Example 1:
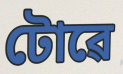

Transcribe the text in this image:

টোৱে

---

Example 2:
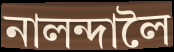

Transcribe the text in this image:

নালন্দালৈ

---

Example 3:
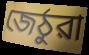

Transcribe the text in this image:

জেঠুৱা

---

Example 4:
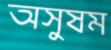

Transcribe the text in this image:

অসুষম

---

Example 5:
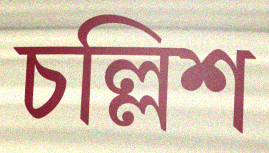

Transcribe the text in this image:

চল্লিশ